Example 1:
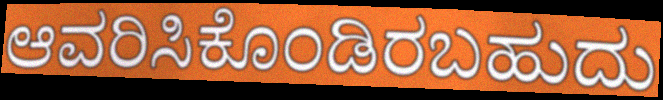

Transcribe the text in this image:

ಆವರಿಸಿಕೊಂಡಿರಬಹುದು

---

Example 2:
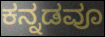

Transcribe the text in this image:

ಕನ್ನಡವೂ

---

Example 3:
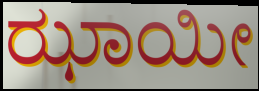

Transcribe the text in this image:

ಝಾಯೀ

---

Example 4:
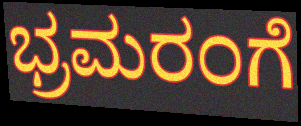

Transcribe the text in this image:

ಭ್ರಮರಂಗೆ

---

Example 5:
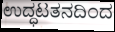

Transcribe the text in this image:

ಉದ್ಧಟತನದಿಂದ